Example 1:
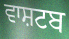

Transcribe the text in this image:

ਵਾਸ਼ਟਬ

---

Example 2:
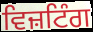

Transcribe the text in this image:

ਵਿਜ਼ਟਿੰਗ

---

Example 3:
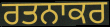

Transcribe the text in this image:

ਰਤਨਾਕਰ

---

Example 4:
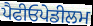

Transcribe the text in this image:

ਪੈਫੀਓਪੇਡੀਲਮ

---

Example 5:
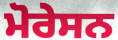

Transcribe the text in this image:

ਮੋਰੇਸਨ